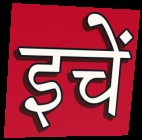
इचें